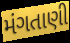
મંગતાણી